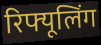
रिफ्यूलिंग